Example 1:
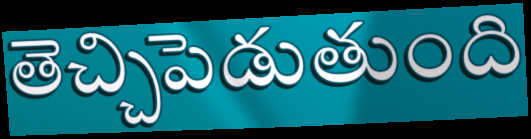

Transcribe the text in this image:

తెచ్చిపెడుతుంది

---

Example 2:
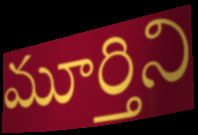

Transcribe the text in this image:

మూర్తిని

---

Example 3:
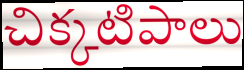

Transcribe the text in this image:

చిక్కటిపాలు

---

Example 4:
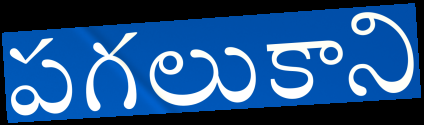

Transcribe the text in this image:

పగలుకాని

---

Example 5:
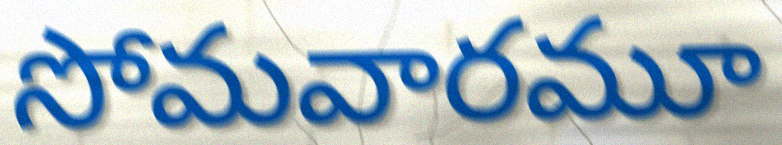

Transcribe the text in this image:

సోమవారమూ